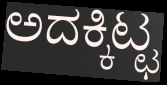
ಅದಕ್ಕಿಟ್ಟ